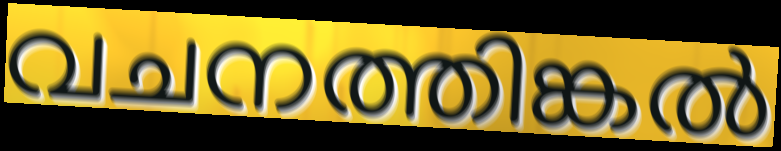
വചനത്തിങ്കൽ